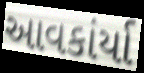
આવકાંર્યા